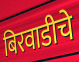
बिरवाडीचे